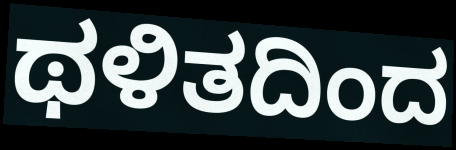
ಥಳಿತದಿಂದ